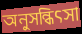
অনুসন্ধিৎসা